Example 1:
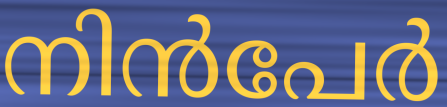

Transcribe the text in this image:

നിൻപേർ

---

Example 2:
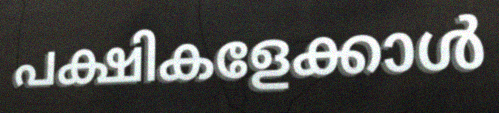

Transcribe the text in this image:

പക്ഷികളേക്കാൾ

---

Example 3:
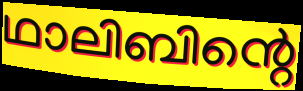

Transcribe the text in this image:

ഥാലിബിന്റെ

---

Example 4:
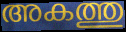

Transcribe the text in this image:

അകത്തു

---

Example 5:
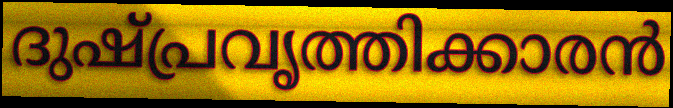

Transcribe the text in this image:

ദുഷ്പ്രവൃത്തിക്കാരൻ